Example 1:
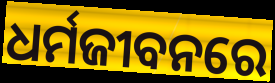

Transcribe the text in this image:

ଧର୍ମଜୀବନରେ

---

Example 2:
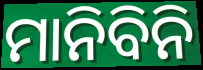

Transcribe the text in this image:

ମାନିବିନି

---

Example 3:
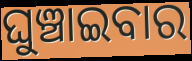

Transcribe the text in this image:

ଘୁଞ୍ଚାଇବାର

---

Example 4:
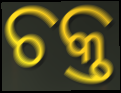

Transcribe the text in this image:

ଚକ୍ତ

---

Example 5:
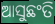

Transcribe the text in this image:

ଆସୁଛଂତି